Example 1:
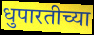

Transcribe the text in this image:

धुपारतीच्या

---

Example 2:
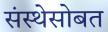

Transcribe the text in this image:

संस्थेसोबत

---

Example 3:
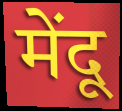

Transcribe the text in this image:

मेंदू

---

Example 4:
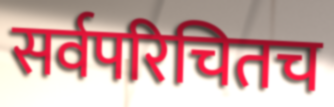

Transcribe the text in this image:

सर्वपरिचितच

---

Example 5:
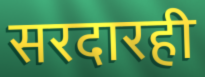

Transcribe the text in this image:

सरदारही